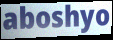
aboshyo